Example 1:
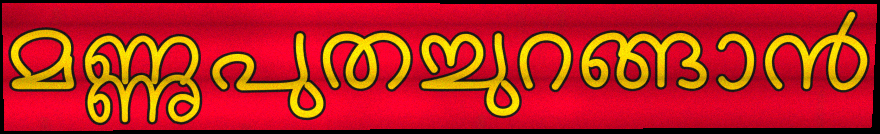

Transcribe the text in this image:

മണ്ണുപുതച്ചുറങ്ങാൻ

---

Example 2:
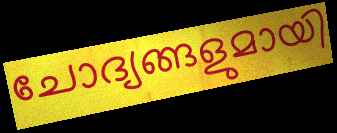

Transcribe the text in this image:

ചോദ്യങ്ങളുമായി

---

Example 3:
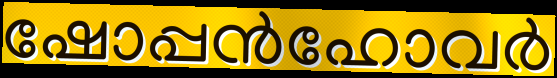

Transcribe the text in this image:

ഷോപ്പൻഹോവർ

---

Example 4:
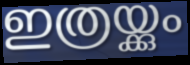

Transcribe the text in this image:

ഇത്രയ്ക്കും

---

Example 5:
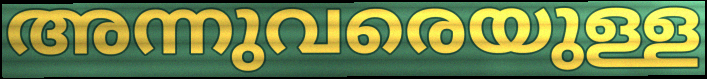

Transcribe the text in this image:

അന്നുവരെയുള്ള